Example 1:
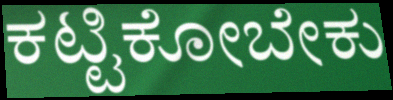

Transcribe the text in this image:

ಕಟ್ಟಿಕೋಬೇಕು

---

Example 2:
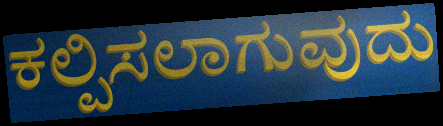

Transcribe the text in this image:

ಕಲ್ಪಿಸಲಾಗುವುದು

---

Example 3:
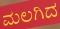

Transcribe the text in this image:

ಮಲಗಿದ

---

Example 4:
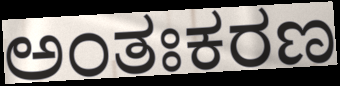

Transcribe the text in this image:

ಅಂತಃಕರಣ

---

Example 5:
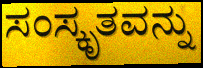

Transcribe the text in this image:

ಸಂಸ್ಕೃತವನ್ನು